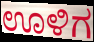
ಊಳಿಗ